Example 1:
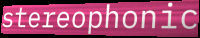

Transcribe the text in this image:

stereophonic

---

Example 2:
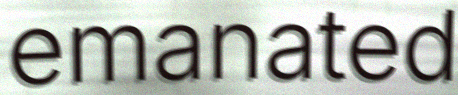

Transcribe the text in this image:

emanated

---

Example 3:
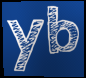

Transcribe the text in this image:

yb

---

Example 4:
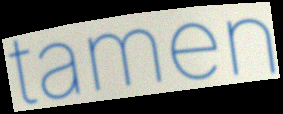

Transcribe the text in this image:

tamen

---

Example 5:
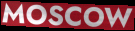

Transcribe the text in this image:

MOSCOW